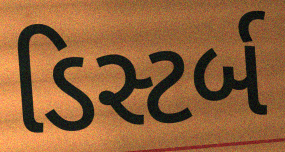
ડિસ્ટર્બ